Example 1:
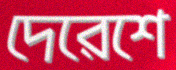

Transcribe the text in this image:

দেৱেশে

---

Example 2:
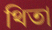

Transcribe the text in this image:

থিতা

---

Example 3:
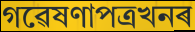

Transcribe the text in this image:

গৱেষণাপত্ৰখনৰ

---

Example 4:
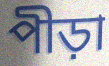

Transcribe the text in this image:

পীড়া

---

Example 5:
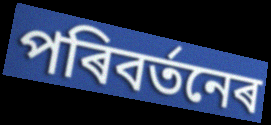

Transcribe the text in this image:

পৰিবৰ্তনেৰ